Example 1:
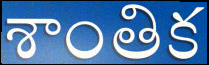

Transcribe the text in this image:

శాంతిక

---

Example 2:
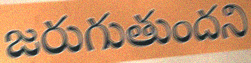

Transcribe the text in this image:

జరుగుతుందని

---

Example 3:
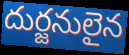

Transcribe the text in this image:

దుర్జనులైన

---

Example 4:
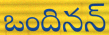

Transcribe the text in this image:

ఒందినన్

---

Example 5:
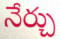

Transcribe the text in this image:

నేర్చు